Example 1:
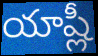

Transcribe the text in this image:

యాష్లీ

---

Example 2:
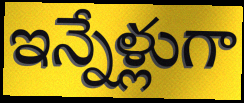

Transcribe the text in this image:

ఇన్నేళ్లుగా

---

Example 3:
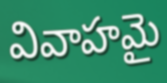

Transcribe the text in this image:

వివాహమై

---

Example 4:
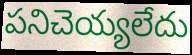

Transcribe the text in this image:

పనిచెయ్యలేదు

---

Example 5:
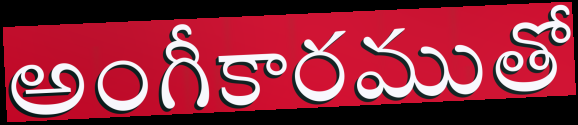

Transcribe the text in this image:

అంగీకారముతో